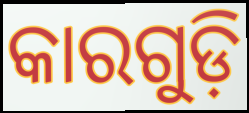
କାରଗୁଡ଼ି